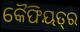
କୈଫିୟତ୍‌ର